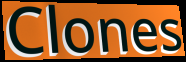
Clones